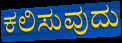
ಕಲಿಸುವುದು